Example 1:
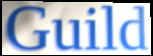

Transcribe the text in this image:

Guild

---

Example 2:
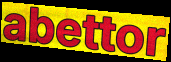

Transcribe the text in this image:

abettor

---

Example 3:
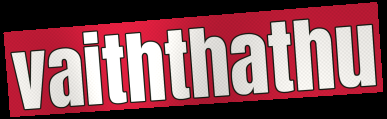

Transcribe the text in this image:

vaiththathu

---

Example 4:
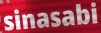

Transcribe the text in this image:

sinasabi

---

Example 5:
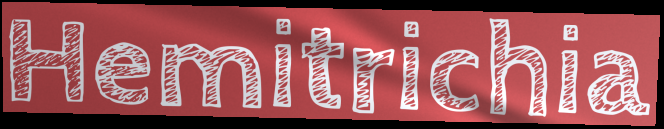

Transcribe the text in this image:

Hemitrichia